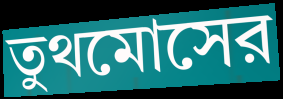
তুথমোসের